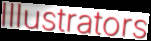
Illustrators